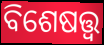
ବିଶେଷତ୍ତ୍ୱ